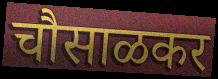
चौसाळकर